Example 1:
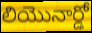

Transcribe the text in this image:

లియొనార్డో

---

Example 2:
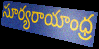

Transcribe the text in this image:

సూర్యరాయాంధ్ర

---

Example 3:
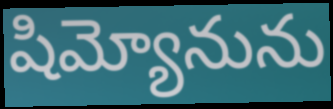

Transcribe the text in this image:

షిమ్యోనును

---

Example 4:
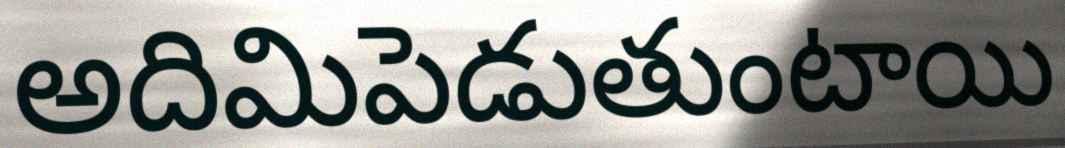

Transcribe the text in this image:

అదిమిపెడుతుంటాయి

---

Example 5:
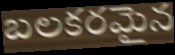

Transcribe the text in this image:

బలకరమైన